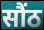
सौंठ